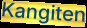
Kangiten